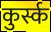
कुर्स्क